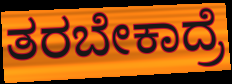
ತರಬೇಕಾದ್ರೆ